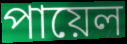
পায়েল